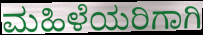
ಮಹಿಳೆಯರಿಗಾಗಿ